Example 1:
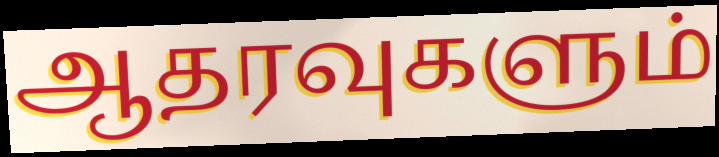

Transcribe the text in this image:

ஆதரவுகளும்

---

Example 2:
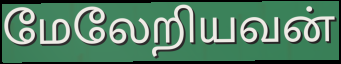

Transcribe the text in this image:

மேலேறியவன்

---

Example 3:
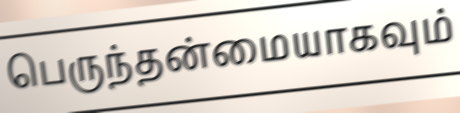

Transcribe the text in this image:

பெருந்தன்மையாகவும்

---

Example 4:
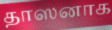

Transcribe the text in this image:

தாஸனாக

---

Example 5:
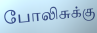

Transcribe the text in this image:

போலிசுக்கு